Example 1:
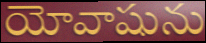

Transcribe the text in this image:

యోవాషును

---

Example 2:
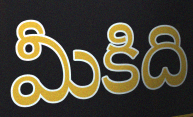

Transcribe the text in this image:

మీకిది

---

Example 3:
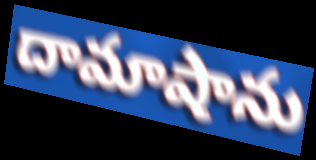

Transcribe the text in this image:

దామాషాను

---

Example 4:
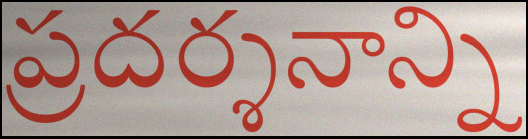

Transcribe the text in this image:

ప్రదర్శనాన్ని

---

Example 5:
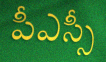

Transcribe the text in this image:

పీఎస్సీ